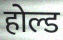
होल्ड